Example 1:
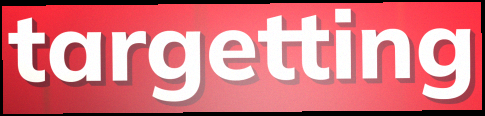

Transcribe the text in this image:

targetting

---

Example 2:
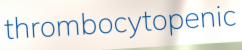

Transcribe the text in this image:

thrombocytopenic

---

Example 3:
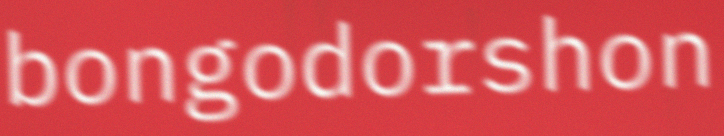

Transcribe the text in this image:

bongodorshon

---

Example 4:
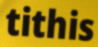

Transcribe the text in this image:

tithis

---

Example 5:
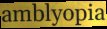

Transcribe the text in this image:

amblyopia